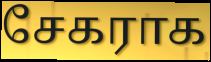
சேகராக